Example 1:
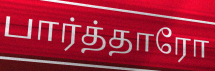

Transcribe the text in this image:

பார்த்தாரோ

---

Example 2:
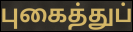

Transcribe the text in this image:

புகைத்துப்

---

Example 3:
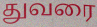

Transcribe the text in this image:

துவரை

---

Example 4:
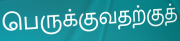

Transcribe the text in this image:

பெருக்குவதற்குத்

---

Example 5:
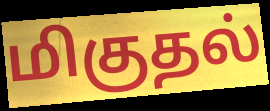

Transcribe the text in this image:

மிகுதல்